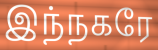
இந்நகரே